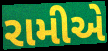
રામીએ